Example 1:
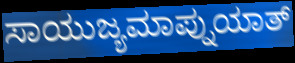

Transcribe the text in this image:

ಸಾಯುಜ್ಯಮಾಪ್ನುಯಾತ್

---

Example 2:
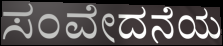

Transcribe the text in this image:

ಸಂವೇದನೆಯ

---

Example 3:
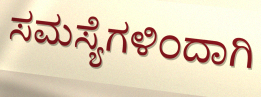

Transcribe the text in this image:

ಸಮಸ್ಯೆಗಳಿಂದಾಗಿ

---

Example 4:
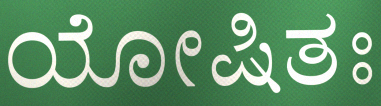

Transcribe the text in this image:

ಯೋಷಿತಃ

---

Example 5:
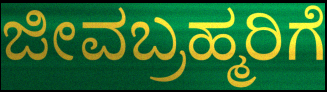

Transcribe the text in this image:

ಜೀವಬ್ರಹ್ಮರಿಗೆ